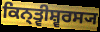
ਕਿਨ੍ਤ੍ਵੀਸ਼੍ਵਰਸ੍ਯ